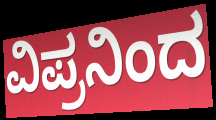
ವಿಪ್ರನಿಂದ